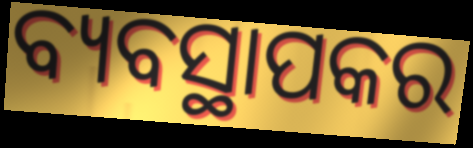
ବ୍ୟବସ୍ଥାପକର